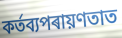
কৰ্তব্যপৰায়ণতাত